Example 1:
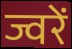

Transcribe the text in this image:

ज्वरें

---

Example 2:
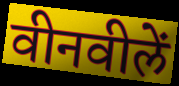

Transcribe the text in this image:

वीनवीलें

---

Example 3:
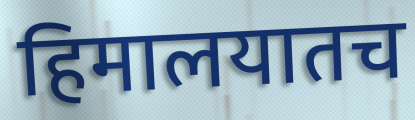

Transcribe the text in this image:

हिमालयातच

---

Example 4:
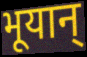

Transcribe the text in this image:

भूयान्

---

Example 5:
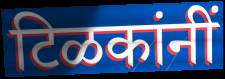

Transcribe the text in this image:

टिळकांनीं